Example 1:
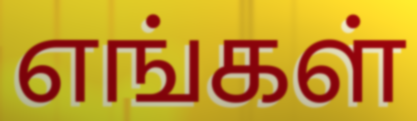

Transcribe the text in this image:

எங்கள்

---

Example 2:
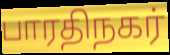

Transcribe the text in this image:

பாரதிநகர்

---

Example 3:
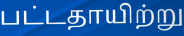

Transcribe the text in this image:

பட்டதாயிற்று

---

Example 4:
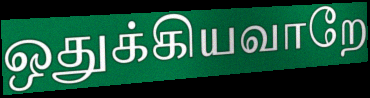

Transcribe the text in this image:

ஒதுக்கியவாறே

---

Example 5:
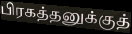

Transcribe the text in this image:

பிரகத்தனுக்குத்